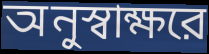
অনুস্বাক্ষরে